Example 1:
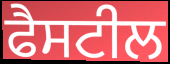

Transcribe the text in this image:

ਫੈਸਟੀਲ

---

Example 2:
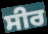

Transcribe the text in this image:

ਸੀਰ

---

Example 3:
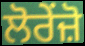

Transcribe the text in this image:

ਲੋਰੇਂਜ਼ੋ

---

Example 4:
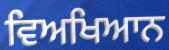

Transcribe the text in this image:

ਵਿਅਖਿਆਨ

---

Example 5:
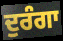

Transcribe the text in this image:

ਦੁਰੰਗਾ